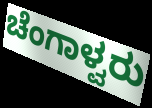
ಚೆಂಗಾಳ್ವರು